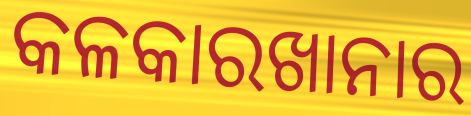
କଳକାରଖାନାର